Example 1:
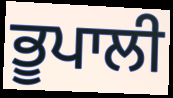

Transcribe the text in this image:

ਭੂਪਾਲੀ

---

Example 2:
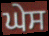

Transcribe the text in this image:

ਘੇਸ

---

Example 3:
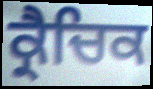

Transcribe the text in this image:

ਕ੍ਰੈਚਿਕ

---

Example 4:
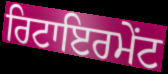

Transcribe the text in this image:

ਰਿਟਾਇਰਮੇਂਟ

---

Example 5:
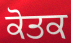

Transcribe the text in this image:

ਕੋਤਕ